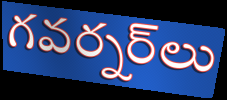
గవర్నర్‌లు